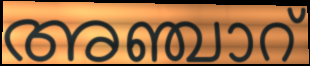
അഞ്ചാറ്